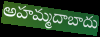
అహమ్మదాబాదు